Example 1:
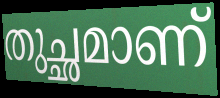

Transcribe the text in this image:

തുച്ഛമാണ്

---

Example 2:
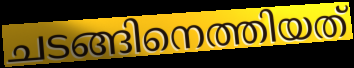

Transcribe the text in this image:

ചടങ്ങിനെത്തിയത്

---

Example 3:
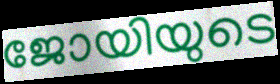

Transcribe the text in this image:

ജോയിയുടെ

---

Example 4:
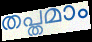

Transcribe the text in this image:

തപ്തമാം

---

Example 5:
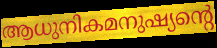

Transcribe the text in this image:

ആധുനികമനുഷ്യന്റെ